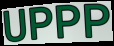
UPPP